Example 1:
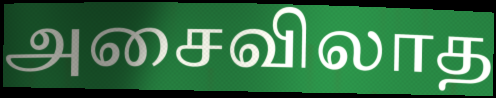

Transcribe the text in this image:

அசைவிலாத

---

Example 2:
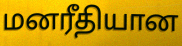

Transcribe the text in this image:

மனரீதியான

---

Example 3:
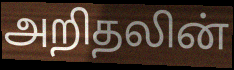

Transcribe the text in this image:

அறிதலின்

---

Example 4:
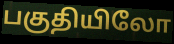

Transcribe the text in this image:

பகுதியிலோ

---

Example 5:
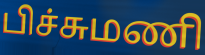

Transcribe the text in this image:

பிச்சுமணி